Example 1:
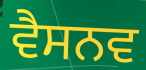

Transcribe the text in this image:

ਵੈਸਨਵ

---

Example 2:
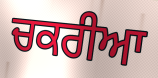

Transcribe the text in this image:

ਚਕਰੀਆ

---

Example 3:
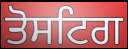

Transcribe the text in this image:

ਤੋਸਟਿਗ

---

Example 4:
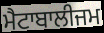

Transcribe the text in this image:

ਮੈਟਾਬਾਲੀਜਮ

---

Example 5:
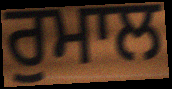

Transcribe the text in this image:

ਰੁਮਾਲ